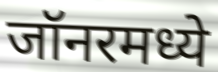
जॉनरमध्ये